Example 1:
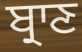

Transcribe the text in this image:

ਬ੍ਰਾਣ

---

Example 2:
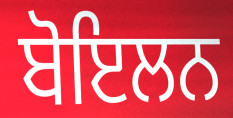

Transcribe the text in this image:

ਬੋਇਲਨ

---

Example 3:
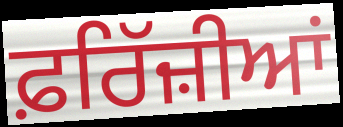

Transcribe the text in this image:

ਫ਼ਰਿੱਜ਼ੀਆਂ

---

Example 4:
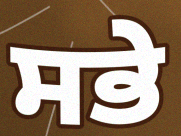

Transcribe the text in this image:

ਸਭੇ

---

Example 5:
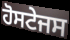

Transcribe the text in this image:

ਹੋਸਟੇਜਸ